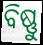
ବିଷ୍ଣୁ